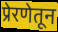
प्रेरणेतून